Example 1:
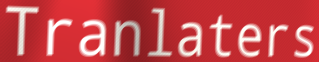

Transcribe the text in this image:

Tranlaters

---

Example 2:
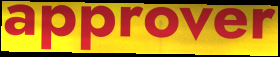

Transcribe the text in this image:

approver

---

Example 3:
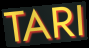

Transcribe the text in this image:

TARI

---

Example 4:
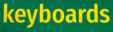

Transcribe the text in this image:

keyboards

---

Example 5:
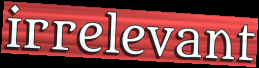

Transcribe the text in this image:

irrelevant